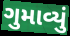
ગુમાવ્યું